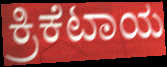
ಕ್ರಿಕೆಟಾಯ